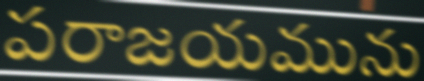
పరాజయమును